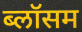
ब्लॉसम